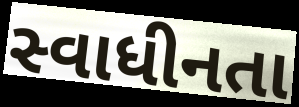
સ્વાધીનતા